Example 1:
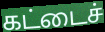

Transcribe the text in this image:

கட்டைச்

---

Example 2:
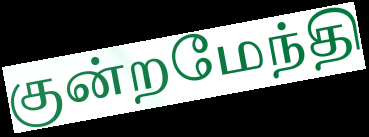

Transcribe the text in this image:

குன்றமேந்தி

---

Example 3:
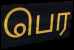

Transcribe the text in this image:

பெர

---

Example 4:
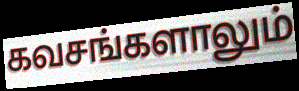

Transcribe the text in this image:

கவசங்களாலும்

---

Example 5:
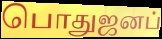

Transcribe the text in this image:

பொதுஜனப்